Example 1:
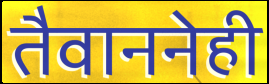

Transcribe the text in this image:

तैवाननेही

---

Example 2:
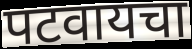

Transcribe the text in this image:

पटवायचा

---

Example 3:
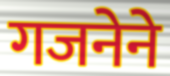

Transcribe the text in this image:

गजनेने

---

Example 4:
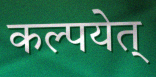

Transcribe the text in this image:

कल्पयेत्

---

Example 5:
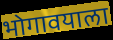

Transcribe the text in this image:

भोगावयाला